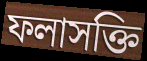
ফলাসক্তি